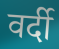
वर्दी